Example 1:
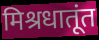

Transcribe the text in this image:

मिश्रधातूंत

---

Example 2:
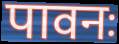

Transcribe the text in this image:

पावनः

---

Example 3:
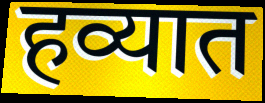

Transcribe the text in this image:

हव्‍यात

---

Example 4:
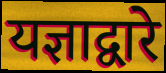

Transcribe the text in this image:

यज्ञाद्वारे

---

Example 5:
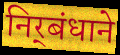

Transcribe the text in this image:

निर्बंधाने